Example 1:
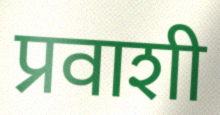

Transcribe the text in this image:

प्रवाशी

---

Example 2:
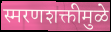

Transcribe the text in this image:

स्मरणशक्तीमुळे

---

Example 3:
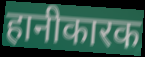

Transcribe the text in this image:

हानीकारक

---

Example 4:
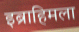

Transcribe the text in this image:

इब्राहिमला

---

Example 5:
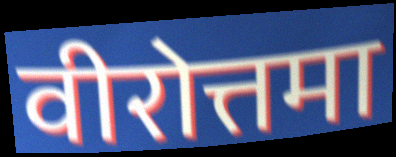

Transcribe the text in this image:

वीरोत्तमा